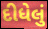
દીધેલું